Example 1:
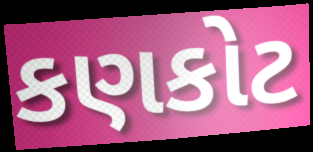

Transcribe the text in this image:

કણકોટ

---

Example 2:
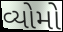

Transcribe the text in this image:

વ્યોમો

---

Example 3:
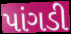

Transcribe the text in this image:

પાંગડી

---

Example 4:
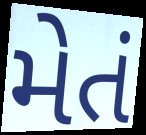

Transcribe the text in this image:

મેતં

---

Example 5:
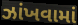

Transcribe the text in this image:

ઝાંખવામાં